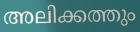
അലിക്കത്തും